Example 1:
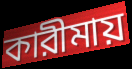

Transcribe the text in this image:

কারীমায়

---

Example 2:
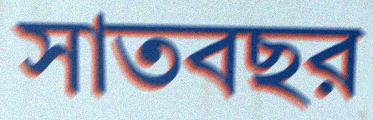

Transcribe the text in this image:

সাতবছর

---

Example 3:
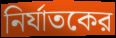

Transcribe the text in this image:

নির্যাতকের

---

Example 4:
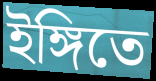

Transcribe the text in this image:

ইঙ্গিতে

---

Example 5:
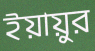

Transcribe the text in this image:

ইয়ায়ুর